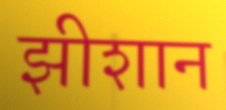
झीशान